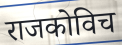
राजकोविच